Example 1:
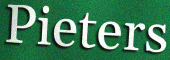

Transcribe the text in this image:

Pieters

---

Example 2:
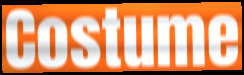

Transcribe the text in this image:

Costume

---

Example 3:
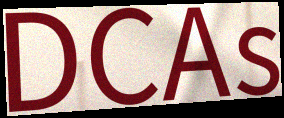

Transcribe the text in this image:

DCAs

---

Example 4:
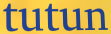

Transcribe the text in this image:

tutun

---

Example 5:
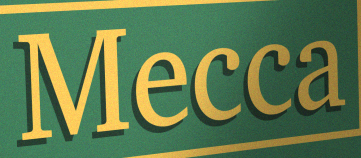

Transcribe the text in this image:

Mecca